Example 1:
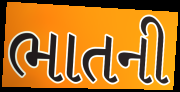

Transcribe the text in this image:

ભાતની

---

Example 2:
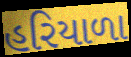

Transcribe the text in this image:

હરિયાળા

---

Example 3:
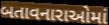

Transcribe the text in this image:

બતાવનારાઓમાં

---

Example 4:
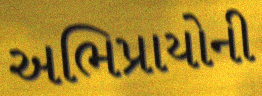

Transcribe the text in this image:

અભિપ્રાયોની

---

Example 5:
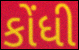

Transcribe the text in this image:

કોંધી